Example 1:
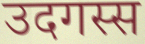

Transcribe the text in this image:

उदगस्स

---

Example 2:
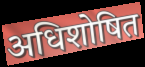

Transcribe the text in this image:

अधिशोषित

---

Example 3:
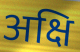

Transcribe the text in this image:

अक्षि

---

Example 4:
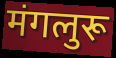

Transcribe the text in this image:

मंगलुरू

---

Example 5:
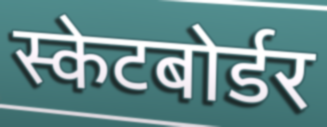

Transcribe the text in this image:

स्केटबोर्डर